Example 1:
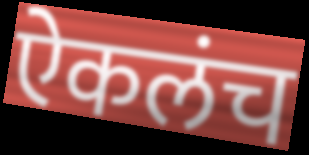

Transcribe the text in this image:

ऐकलंच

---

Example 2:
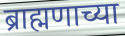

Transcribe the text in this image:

ब्राह्मणाच्या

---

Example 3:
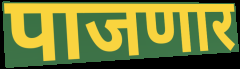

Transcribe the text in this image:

पाजणार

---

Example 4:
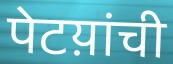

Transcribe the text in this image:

पेटय़ांची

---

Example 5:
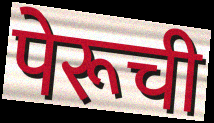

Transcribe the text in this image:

पेरूची